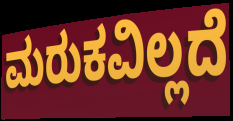
ಮರುಕವಿಲ್ಲದೆ